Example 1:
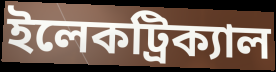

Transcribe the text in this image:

ইলেকট্রিক্যাল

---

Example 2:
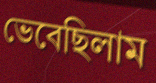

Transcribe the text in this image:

ভেবেছিলাম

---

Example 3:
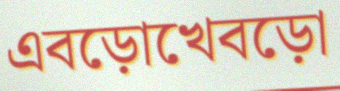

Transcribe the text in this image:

এবড়োখেবড়ো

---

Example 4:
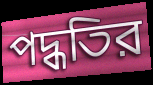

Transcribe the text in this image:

পদ্ধতির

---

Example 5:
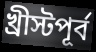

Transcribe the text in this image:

খ্রীস্টপূর্ব